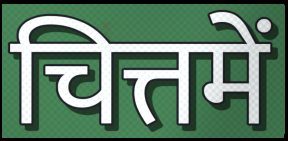
चित्तमें